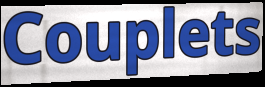
Couplets